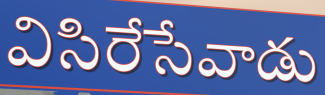
విసిరేసేవాడు